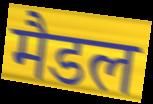
मैडल